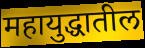
महायुद्धातील